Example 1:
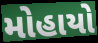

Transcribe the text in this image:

મોહાયો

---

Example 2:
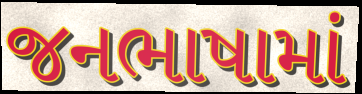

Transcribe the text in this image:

જનભાષામાં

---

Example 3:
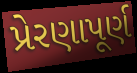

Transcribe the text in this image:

પ્રેરણાપૂર્ણ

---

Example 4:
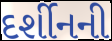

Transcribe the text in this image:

દર્શીનની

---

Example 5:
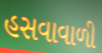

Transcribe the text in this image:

હસવાવાળી